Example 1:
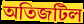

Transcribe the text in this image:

অতিজটিল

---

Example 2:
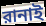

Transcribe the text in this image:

রানাই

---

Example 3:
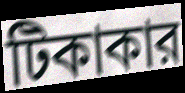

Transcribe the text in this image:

টিকাকার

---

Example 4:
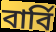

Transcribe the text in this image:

বার্বি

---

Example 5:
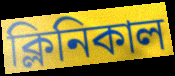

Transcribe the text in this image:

ক্লিনিকাল